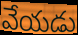
వేయడు